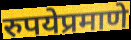
रुपयेप्रमाणे